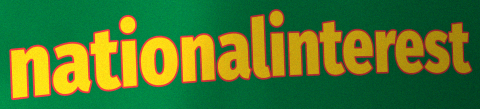
nationalinterest